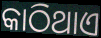
କାଠିଥାଏ